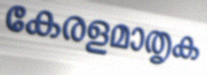
കേരളമാതൃക